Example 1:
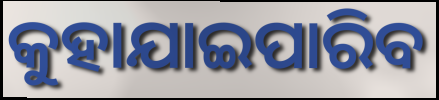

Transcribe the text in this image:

କୁହାଯାଇପାରିବ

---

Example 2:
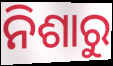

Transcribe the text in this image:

ନିଶାରୁ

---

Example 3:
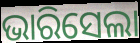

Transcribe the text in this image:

ଭାରିସେଲା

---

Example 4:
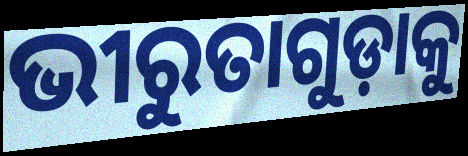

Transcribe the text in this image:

ଭୀରୁତାଗୁଡ଼ାକୁ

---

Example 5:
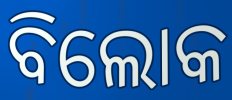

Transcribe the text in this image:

ବିଲୋକ